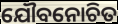
ଯୌବନୋଚିତ